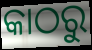
କାଠରୁ